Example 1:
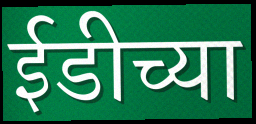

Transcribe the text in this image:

ईडीच्या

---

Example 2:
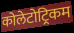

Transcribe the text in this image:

कोलेटोट्रिकम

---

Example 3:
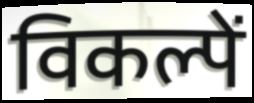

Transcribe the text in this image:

विकल्पें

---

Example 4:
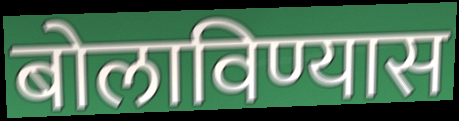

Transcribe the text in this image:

बोलाविण्यास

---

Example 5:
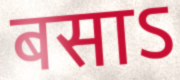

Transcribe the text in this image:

बसाऽ